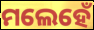
ମଲେହେଁ